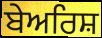
ਬੇਅਰਿਸ਼